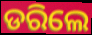
ଡରିଲେ